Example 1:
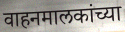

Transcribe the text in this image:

वाहनमालकांच्या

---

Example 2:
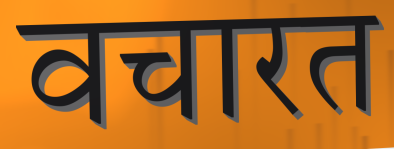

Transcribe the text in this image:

वचारत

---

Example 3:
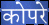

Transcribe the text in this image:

कोपरे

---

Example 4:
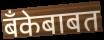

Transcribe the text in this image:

बँकेबाबत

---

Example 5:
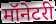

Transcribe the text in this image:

मॉनेटरी